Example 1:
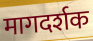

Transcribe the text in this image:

मागदर्शक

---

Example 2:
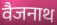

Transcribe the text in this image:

वैजनाथ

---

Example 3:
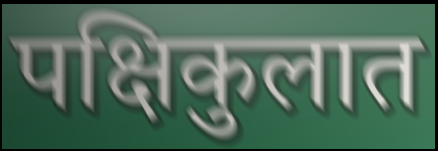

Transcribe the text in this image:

पक्षिकुलात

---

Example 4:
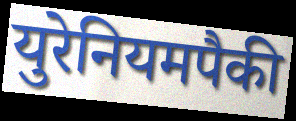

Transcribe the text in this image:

युरेनियमपैकी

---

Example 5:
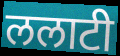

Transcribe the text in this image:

ललाटी